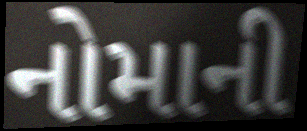
નોમાની